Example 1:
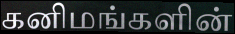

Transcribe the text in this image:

கனிமங்களின்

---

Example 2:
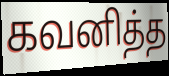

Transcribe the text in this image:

கவனித்த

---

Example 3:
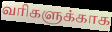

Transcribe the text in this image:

வரிகளுக்காக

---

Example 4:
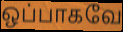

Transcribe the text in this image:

ஒப்பாகவே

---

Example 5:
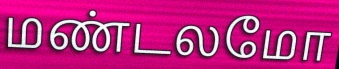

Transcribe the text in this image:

மண்டலமோ